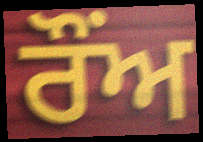
ਰੌਂਅ